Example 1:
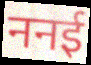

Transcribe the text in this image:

ननई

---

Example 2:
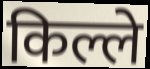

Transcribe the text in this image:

किल्ले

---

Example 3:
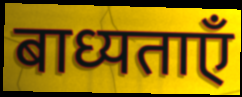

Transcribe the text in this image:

बाध्यताएँ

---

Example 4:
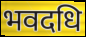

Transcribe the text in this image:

भवदधि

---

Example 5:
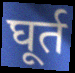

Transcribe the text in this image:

घूर्त